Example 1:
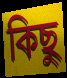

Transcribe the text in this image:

কিছু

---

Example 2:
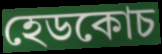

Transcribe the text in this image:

হেডকোচ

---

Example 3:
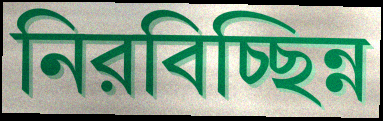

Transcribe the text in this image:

নিরবিচ্ছিন্ন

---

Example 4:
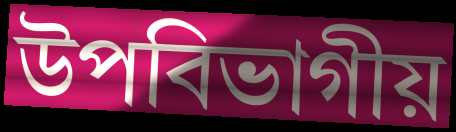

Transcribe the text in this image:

উপবিভাগীয়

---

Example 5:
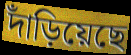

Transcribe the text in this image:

দাঁড়িয়েছে